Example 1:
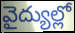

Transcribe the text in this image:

వైద్యుల్లో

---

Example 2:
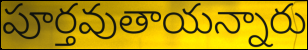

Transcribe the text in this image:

పూర్తవుతాయన్నారు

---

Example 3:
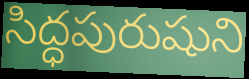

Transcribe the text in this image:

సిద్ధపురుషుని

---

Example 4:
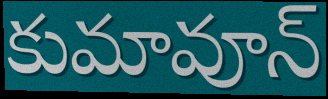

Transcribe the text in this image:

కుమావూన్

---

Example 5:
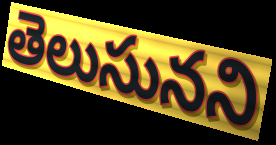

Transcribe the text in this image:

తెలుసునని